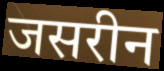
जसरीन